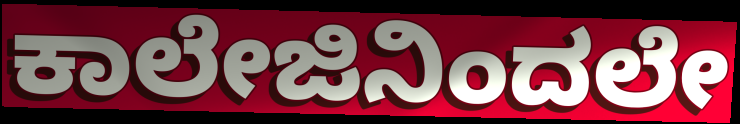
ಕಾಲೇಜಿನಿಂದಲೇ